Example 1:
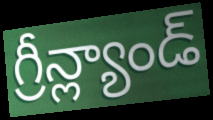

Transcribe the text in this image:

గ్రీన్ల్యాండ్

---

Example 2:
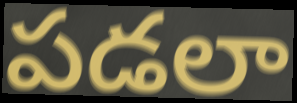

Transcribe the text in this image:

పడలా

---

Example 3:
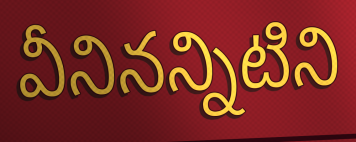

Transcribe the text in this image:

వీనినన్నిటిని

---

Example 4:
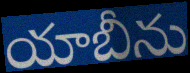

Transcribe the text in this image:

యాబీను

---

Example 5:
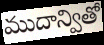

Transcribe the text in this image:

ముదాన్వితో